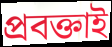
প্রবক্তাই